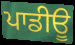
ਪਾਡੀਊ